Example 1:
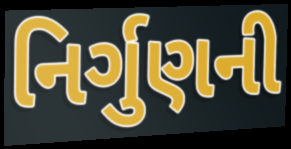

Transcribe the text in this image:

નિર્ગુણની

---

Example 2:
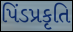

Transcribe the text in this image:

પિંડપ્રકૃતિ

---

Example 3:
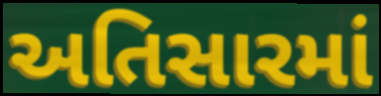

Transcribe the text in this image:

અતિસારમાં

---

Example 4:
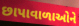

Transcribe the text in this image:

છાપાવાળાઓને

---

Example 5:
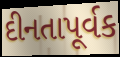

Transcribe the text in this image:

દીનતાપૂર્વક